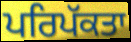
ਪਰਿਪੱਕਤਾ